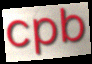
cpb